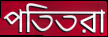
পতিতরা